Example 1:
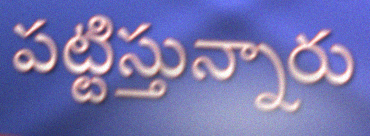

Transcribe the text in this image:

పట్టిస్తున్నారు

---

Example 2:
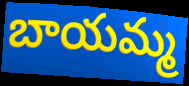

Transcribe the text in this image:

బాయమ్మ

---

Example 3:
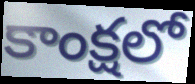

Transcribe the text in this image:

కాంక్షలో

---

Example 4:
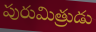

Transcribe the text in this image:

పురుమిత్రుడు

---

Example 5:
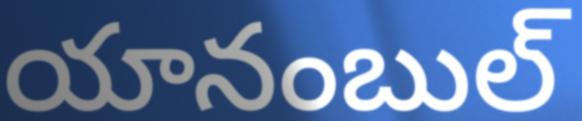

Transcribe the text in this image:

యానంబుల్